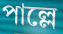
পাল্লে